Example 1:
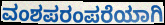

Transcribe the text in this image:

ವಂಶಪರಂಪರೆಯಾಗಿ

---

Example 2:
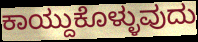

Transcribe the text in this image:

ಕಾಯ್ದುಕೊಳ್ಳುವುದು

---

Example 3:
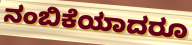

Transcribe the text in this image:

ನಂಬಿಕೆಯಾದರೂ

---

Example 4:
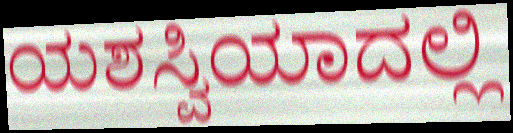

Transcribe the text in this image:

ಯಶಸ್ವಿಯಾದಲ್ಲಿ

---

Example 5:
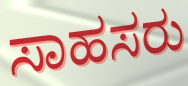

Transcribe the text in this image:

ಸಾಹಸರು